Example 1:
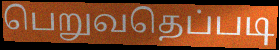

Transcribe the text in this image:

பெறுவதெப்படி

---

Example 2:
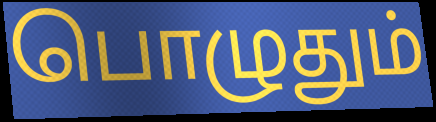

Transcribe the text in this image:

பொழுதும்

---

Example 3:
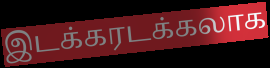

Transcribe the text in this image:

இடக்கரடக்கலாக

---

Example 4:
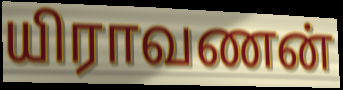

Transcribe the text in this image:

யிராவணன்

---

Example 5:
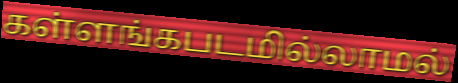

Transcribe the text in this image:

கள்ளங்கபடமில்லாமல்